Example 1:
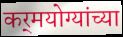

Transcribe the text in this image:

कर्मयोग्यांच्या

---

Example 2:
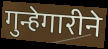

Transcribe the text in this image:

गुन्हेगारीने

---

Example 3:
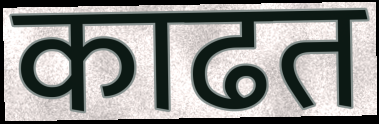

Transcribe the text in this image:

काढत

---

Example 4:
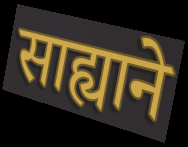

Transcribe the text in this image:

साह्याने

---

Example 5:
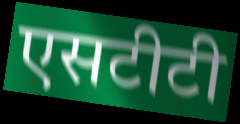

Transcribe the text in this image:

एसटीटी